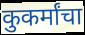
कुकर्मांचा